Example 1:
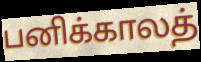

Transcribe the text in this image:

பனிக்காலத்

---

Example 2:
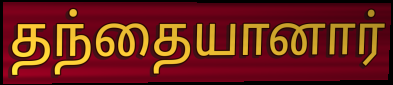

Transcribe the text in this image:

தந்தையானார்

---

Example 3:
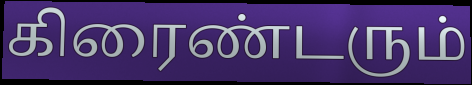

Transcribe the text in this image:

கிரைண்டரும்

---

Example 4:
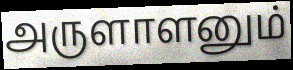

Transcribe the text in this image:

அருளாளனும்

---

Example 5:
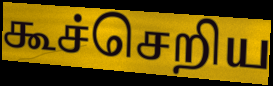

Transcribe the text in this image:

கூச்செறிய